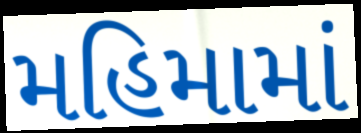
મહિમામાં